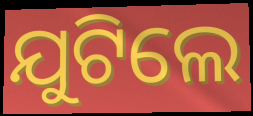
ଯୁଟିଲେ